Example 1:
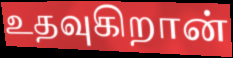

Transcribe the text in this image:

உதவுகிறான்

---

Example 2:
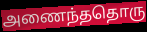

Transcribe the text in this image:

அணைந்ததொரு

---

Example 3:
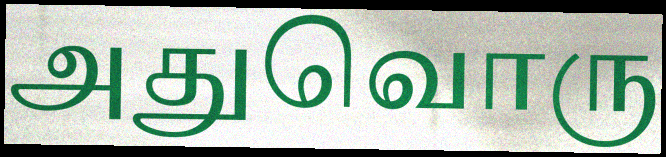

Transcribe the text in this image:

அதுவொரு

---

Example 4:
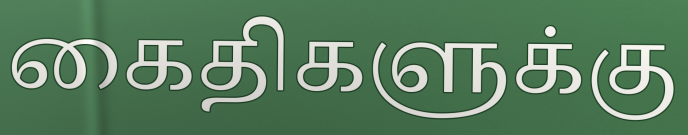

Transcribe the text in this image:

கைதிகளுக்கு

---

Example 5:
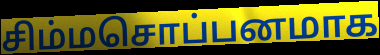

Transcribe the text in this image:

சிம்மசொப்பனமாக